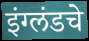
इंग्लंडचे